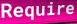
Require